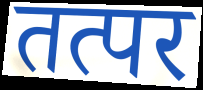
तत्पर